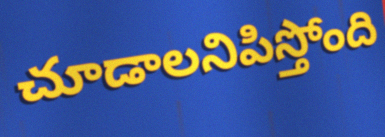
చూడాలనిపిస్తోంది